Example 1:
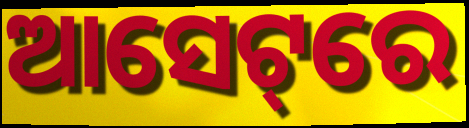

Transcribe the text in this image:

ଆସେଟ୍‌ରେ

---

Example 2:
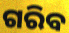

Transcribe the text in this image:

ଗରିବ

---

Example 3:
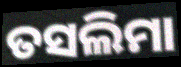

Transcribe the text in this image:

ତସଲିମା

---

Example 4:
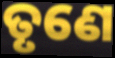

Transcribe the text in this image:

ତୃଣେ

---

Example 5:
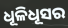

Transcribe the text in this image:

ଧୂଳିଧୂସର